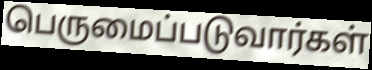
பெருமைப்படுவார்கள்